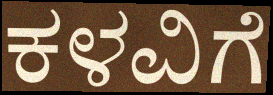
ಕಳವಿಗೆ